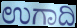
ಉಗಾದಿ